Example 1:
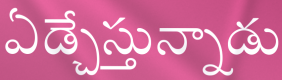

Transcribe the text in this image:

ఏడ్చేస్తున్నాడు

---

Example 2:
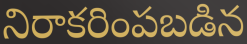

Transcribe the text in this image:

నిరాకరింపబడిన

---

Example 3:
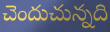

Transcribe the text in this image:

చెందుచున్నది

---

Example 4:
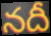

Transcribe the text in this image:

నదీ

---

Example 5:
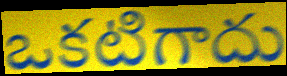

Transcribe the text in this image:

ఒకటిగాదు